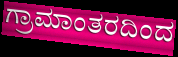
ಗ್ರಾಮಾಂತರದಿಂದ